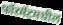
फॉरमॅटमधील